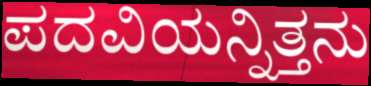
ಪದವಿಯನ್ನಿತ್ತನು